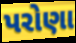
પરોણા